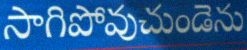
సాగిపోవుచుండెను